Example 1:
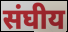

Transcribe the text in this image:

संघीय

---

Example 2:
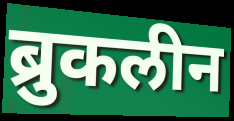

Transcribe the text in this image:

ब्रुकलीन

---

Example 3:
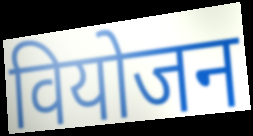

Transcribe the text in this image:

वियोजन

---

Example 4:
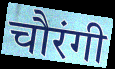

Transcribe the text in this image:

चौरंगी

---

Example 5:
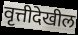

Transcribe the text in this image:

वृत्तीदेखील